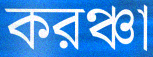
করঞ্চা